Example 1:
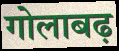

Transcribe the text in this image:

गोलाबढ़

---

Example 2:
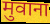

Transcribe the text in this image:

मुवाना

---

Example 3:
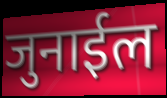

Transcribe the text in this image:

जुनाईल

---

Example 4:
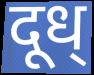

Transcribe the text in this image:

दूध्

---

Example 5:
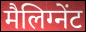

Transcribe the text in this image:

मैलिग्नेंट